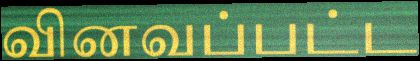
வினவப்பட்ட